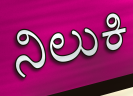
ನಿಲುಕಿ